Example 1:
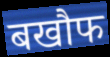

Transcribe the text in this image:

बखौफ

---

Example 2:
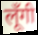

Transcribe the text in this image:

लूँगी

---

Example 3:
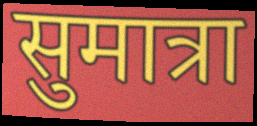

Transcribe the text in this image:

सुमात्रा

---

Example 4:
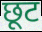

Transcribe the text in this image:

छूट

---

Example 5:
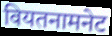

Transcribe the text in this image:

वियतनामनेट